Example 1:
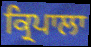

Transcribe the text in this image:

ਕ੍ਰਿਪਾਲਾ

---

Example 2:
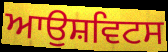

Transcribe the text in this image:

ਆਉਸ਼ਵਿਟਸ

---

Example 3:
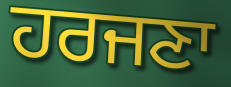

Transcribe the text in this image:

ਹਰਜਣਾ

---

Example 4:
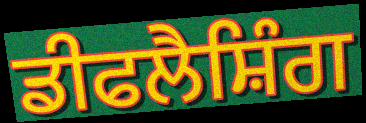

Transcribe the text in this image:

ਡੀਫਲੈਸ਼ਿੰਗ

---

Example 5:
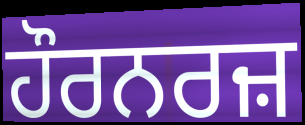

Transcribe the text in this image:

ਹੌਰਨਰਜ਼